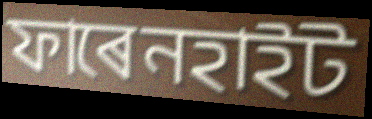
ফাৰেনহাইট